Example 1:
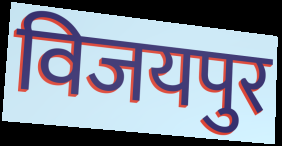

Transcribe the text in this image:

विजयपुर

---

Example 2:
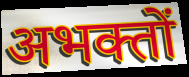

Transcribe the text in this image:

अभक्तों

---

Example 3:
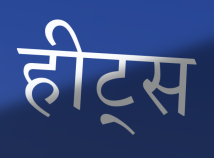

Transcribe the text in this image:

हीट्स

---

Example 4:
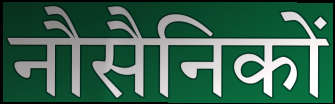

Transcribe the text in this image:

नौसैनिकों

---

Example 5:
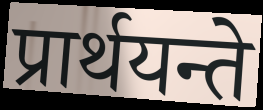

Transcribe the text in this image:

प्रार्थयन्ते